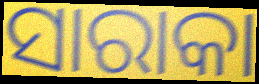
ସାରାକା